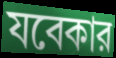
যবেকার